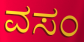
ವಸಂ